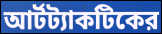
আর্টট্যাকটিকের